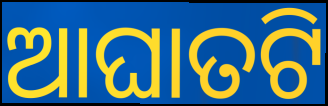
ଆଘାତଟି